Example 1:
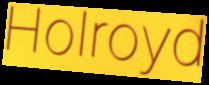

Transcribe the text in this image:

Holroyd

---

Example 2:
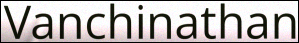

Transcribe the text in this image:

Vanchinathan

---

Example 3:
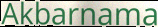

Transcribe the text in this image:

Akbarnama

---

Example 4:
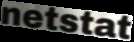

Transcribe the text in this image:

netstat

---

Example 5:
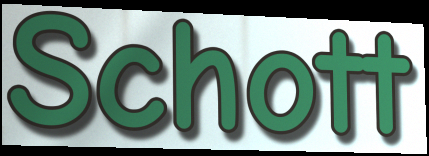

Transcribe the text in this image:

Schott